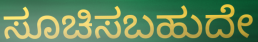
ಸೂಚಿಸಬಹುದೇ